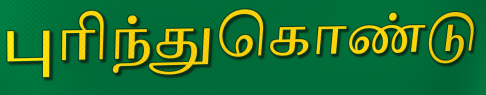
புரிந்துகொண்டு